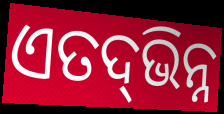
ଏତଦ୍‍ଭିନ୍ନ